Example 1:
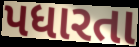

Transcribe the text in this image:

પધારતા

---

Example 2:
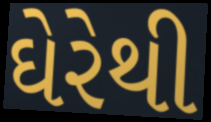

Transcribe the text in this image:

ઘેરેથી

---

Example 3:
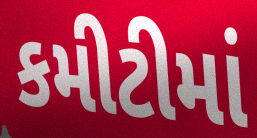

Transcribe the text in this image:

કમીટીમાં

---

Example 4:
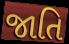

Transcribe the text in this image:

જાતિ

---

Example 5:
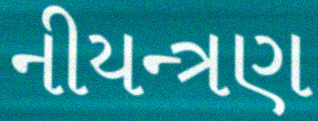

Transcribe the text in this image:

નીયન્ત્રણ